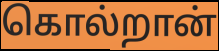
கொல்றான்